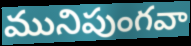
మునిపుంగవా